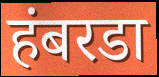
हंबरडा